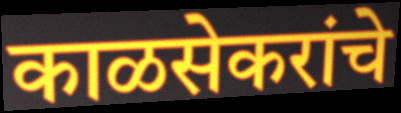
काळसेकरांचे